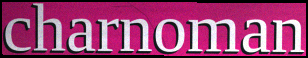
charnoman